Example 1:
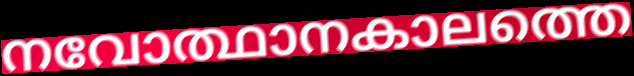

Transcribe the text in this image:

നവോത്ഥാനകാലത്തെ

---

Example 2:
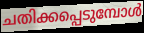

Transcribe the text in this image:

ചതിക്കപ്പെടുമ്പോൾ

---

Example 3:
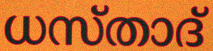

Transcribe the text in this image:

ധസ്താദ്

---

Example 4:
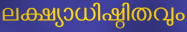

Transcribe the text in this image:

ലക്ഷ്യാധിഷ്ഠിതവും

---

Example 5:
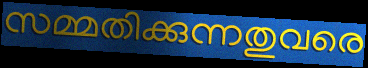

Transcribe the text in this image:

സമ്മതിക്കുന്നതുവരെ